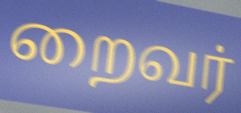
றைவர்